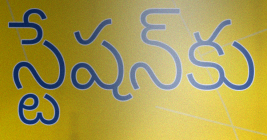
స్టేషన్‍కు